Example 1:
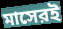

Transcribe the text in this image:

মাসেরই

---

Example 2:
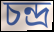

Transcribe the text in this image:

চন্দ্র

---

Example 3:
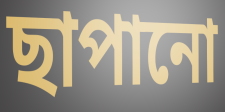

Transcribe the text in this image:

ছাপানো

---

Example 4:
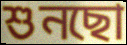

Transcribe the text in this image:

শুনছো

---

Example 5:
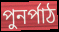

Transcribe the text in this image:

পুনর্পাঠ